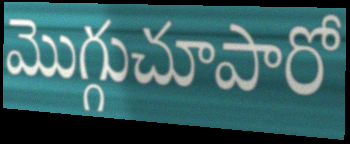
మొగ్గుచూపారో